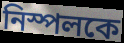
নিস্পলকে